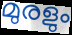
മുരളും